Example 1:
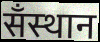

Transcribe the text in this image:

सँस्थान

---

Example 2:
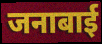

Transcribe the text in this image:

जनाबाई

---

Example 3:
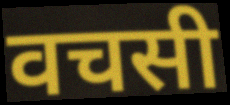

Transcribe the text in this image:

वचसी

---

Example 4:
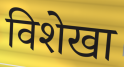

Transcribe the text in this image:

विशेखा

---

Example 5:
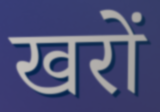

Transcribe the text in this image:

खरों